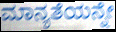
ಮಾನ್ಯತೆಯನ್ನೇ